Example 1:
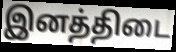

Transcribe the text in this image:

இனத்திடை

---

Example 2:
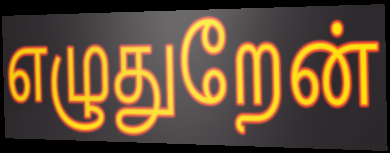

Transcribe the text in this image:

எழுதுறேன்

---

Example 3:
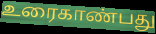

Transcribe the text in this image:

உரைகாண்பது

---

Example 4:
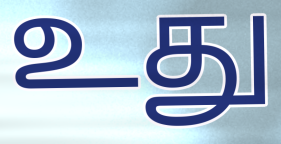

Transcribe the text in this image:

உது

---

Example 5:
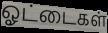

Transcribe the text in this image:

ஓட்டைகள்